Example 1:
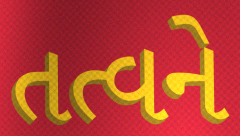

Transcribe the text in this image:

તત્વને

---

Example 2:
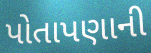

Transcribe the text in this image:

પોતાપણાની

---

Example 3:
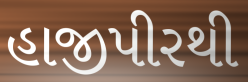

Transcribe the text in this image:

હાજીપીરથી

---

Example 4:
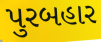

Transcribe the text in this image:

પુરબહાર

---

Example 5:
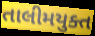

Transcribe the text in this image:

તાલીમયુક્ત